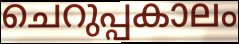
ചെറുപ്പകാലം